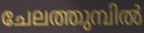
ചേലത്തുമ്പിൽ